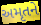
અમૃતને